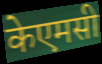
केएमसी